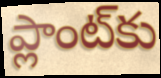
ప్లాంట్‌కు